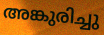
അങ്കുരിച്ചു